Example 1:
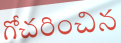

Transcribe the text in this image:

గోచరించిన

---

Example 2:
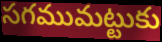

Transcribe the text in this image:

సగముమట్టుకు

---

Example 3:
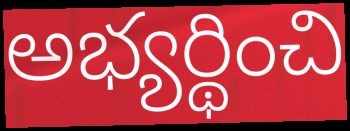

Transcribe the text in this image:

అభ్యర్థించి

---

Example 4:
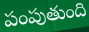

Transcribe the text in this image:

పంపుతుంది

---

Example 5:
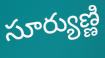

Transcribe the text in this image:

సూర్యుణ్ణి